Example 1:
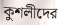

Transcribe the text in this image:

কুশলীদের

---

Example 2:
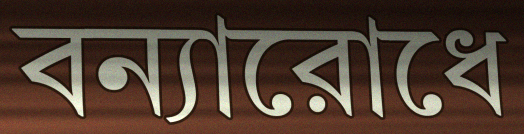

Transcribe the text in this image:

বন্যারোধে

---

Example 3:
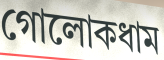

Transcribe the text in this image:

গোলোকধাম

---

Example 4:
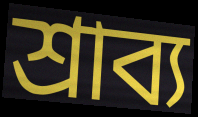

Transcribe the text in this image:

শ্রাব্য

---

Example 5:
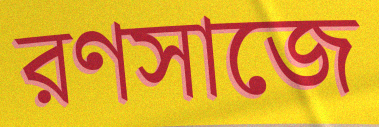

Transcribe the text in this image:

রণসাজে